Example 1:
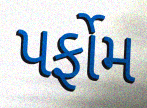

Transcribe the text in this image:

પર્ફોમ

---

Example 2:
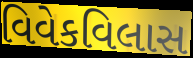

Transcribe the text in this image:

વિવેકવિલાસ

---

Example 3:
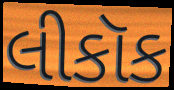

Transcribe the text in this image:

લીકૉક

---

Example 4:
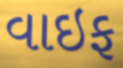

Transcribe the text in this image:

વાઇફ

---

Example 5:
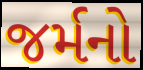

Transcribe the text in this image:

જર્મનો